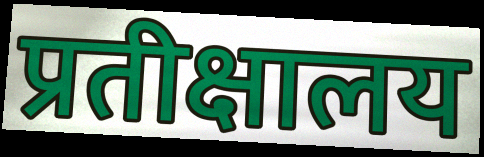
प्रतीक्षालय